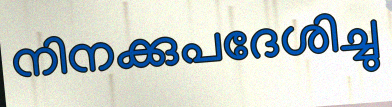
നിനക്കുപദേശിച്ചു